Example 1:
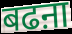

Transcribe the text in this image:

बढऩा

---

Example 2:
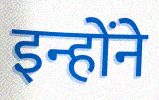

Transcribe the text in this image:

इन्‍होंने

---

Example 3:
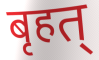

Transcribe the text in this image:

बृहत्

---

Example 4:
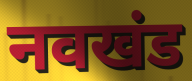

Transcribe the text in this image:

नवखंड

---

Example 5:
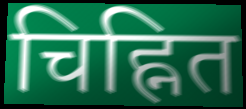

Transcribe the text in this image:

चिह्नित